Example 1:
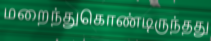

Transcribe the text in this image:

மறைந்துகொண்டிருந்தது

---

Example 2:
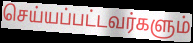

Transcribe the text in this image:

செய்யப்பட்டவர்களும்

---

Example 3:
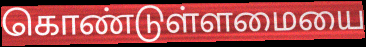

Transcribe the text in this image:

கொண்டுள்ளமையை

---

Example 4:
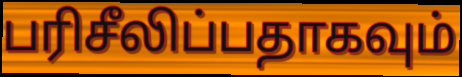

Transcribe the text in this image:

பரிசீலிப்பதாகவும்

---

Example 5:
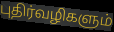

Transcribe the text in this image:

புதிர்வழிகளும்